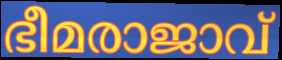
ഭീമരാജാവ്